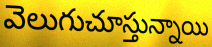
వెలుగుచూస్తున్నాయి